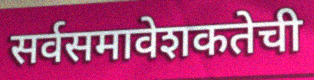
सर्वसमावेशकतेची